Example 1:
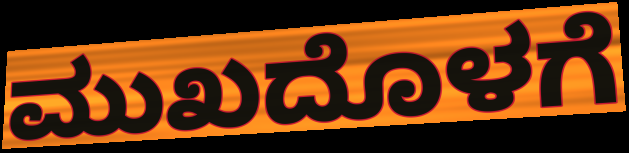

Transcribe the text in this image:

ಮುಖದೊಳಗೆ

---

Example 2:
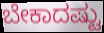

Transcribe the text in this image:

ಬೇಕಾದಷ್ಟು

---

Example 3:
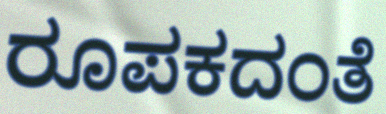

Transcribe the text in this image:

ರೂಪಕದಂತೆ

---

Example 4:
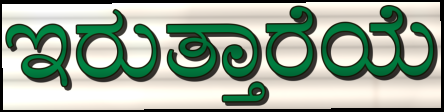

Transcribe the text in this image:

ಇರುತ್ತಾರೆಯೆ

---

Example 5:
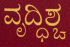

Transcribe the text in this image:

ವೃದ್ಧಿಶ್ಚ